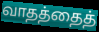
வாதத்தைத்